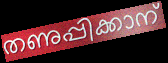
തണുപ്പിക്കാന്